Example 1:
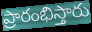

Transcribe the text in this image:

ప్రారంభిస్తారు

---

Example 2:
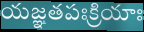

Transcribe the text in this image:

యజ్ఞతపఃక్రియాః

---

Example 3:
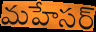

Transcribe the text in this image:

మహేసర్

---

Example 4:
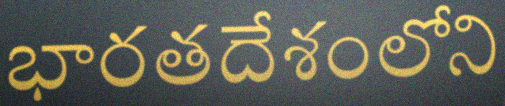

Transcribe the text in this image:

భారతదేశంలోని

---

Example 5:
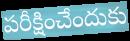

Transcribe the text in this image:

పరీక్షించేందుకు